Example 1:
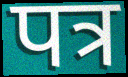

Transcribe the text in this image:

पत्र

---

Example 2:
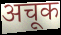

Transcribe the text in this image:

अचूक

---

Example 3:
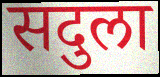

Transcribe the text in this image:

सदुला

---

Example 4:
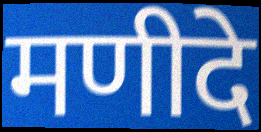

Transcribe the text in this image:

मणीदे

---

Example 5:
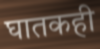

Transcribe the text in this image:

घातकही